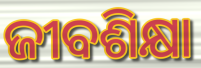
ଜୀବଶିକ୍ଷା